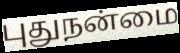
புதுநன்மை